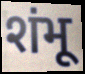
शंभू